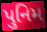
પુનિમ